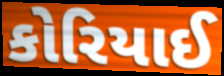
કોરિયાઈ